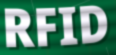
RFID